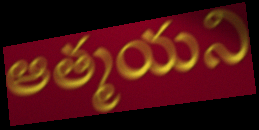
ఆత్మయని